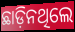
ଛାଡ଼ିନଥିଲେ